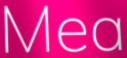
Mea